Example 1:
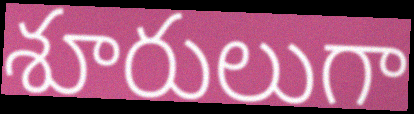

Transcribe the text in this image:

శూరులుగా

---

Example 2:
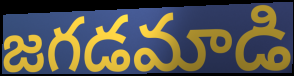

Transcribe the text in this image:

జగడమాడి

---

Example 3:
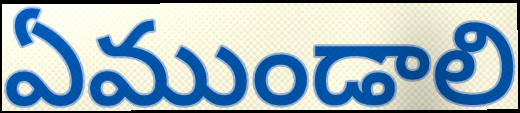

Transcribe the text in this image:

ఏముండాలి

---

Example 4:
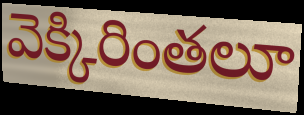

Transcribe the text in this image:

వెక్కిరింతలూ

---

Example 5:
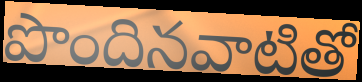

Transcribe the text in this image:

పొందినవాటితో